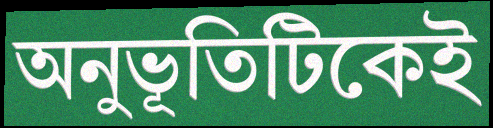
অনুভূতিটিকেই